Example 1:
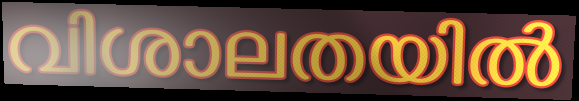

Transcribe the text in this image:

വിശാലതയിൽ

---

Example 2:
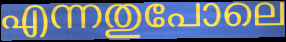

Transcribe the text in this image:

എന്നതുപോലെ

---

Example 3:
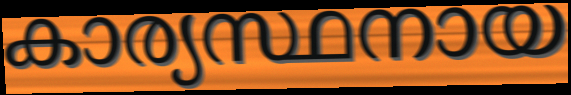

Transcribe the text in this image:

കാര്യസ്ഥനായ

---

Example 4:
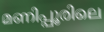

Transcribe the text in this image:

മണിപ്പൂരിലെ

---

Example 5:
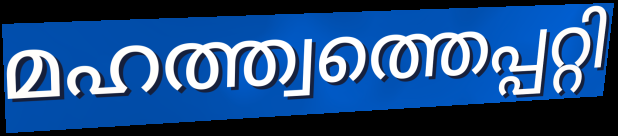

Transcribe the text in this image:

മഹത്ത്വത്തെപ്പറ്റി